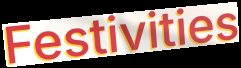
Festivities